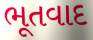
ભૂતવાદ